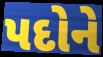
પદોને